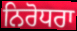
ਨਿਰੋਧਰਾ